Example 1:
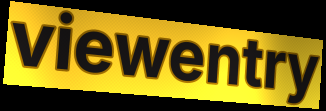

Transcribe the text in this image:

viewentry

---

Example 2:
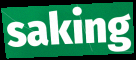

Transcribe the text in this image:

saking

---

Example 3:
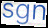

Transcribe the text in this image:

sgn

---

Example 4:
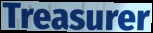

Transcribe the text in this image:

Treasurer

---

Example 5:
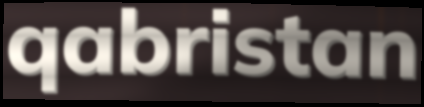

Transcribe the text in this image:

qabristan